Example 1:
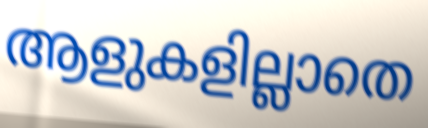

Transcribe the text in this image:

ആളുകളില്ലാതെ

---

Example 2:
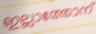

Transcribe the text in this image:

ഇല്ലാത്തോന്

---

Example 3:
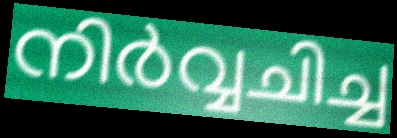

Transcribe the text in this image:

നിർവ്വചിച്ച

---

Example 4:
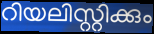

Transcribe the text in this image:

റിയലിസ്റ്റിക്കും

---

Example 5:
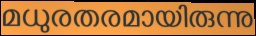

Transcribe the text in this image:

മധുരതരമായിരുന്നു